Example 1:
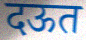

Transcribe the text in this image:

दऊत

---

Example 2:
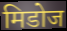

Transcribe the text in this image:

मिडोज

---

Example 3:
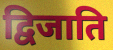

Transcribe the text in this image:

द्विजाति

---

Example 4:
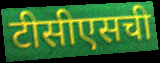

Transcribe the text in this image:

टीसीएसची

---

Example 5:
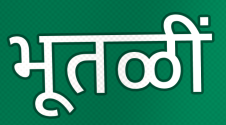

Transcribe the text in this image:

भूतळीं